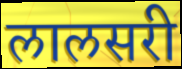
लालसरी